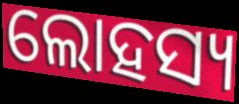
ଲୋହସ୍ୟ